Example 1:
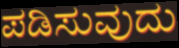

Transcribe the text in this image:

ಪಡಿಸುವುದು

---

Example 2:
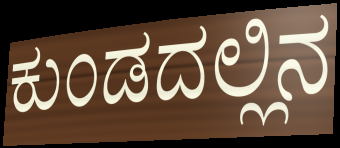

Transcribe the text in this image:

ಕುಂಡದಲ್ಲಿನ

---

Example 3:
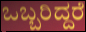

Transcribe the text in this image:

ಒಬ್ಬರಿದ್ದರೆ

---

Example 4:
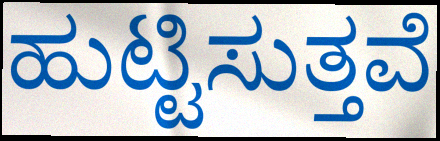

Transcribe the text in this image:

ಹುಟ್ಟಿಸುತ್ತವೆ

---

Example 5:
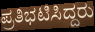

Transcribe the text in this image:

ಪ್ರತಿಭಟಿಸಿದ್ದರು